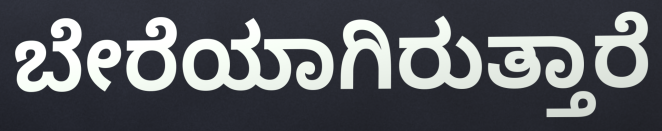
ಬೇರೆಯಾಗಿರುತ್ತಾರೆ